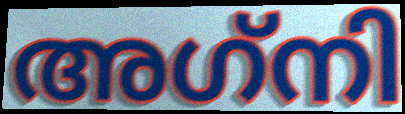
അഗ്‌നി